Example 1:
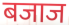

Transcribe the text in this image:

बजाज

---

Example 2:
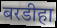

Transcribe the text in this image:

बरडीहा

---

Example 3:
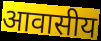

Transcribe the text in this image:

आवासीय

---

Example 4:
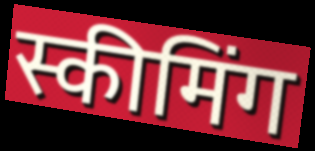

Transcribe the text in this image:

स्कीमिंग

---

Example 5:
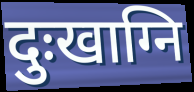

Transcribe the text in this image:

दुःखाग्नि